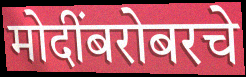
मोदींबरोबरचे